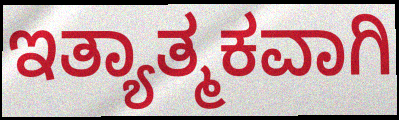
ಇತ್ಯಾತ್ಮಕವಾಗಿ